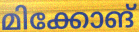
മിക്കോങ്